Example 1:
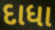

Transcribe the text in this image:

દાધા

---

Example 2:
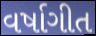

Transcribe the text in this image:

વર્ષાગીત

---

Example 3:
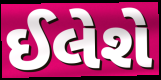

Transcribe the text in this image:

ઈલેશે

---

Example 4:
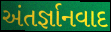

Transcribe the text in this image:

અંતર્જ્ઞાનવાદ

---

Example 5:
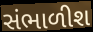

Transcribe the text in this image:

સંભાળીશ